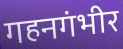
गहनगंभीर